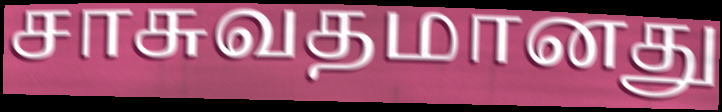
சாசுவதமானது